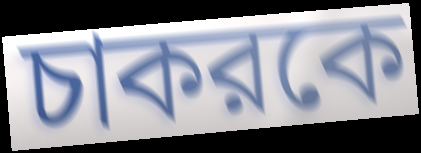
চাকরকে